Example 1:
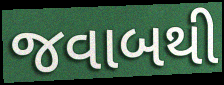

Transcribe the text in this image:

જવાબથી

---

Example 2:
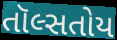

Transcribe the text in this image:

તૉલ્સતોય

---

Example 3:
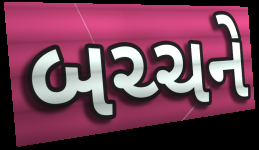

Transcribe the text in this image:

બચ્ચને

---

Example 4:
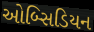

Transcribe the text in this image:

ઓબ્સિડિયન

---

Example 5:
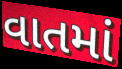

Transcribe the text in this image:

વાતમાં